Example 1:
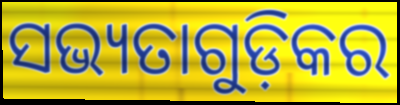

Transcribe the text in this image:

ସଭ୍ୟତାଗୁଡ଼ିକର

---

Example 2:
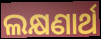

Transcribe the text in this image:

ଲକ୍ଷଣାର୍ଥ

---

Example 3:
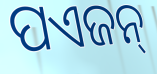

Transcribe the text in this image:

ପଏଜନ୍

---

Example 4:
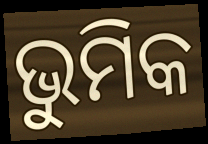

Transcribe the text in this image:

ଭୁମିକ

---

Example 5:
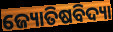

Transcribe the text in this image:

ଜ୍ୟୋତିଷବିଦ୍ୟା